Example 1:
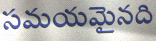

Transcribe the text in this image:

సమయమైనది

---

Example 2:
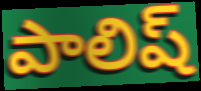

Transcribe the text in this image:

పాలిష్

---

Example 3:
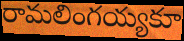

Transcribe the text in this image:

రామలింగయ్యకూ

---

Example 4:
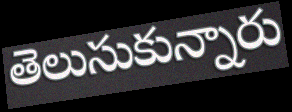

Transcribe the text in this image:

తెలుసుకున్నారు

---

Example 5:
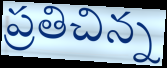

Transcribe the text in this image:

ప్రతిచిన్న